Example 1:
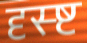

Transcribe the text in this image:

दृस्ष्ट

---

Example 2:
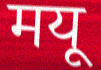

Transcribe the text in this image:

मयू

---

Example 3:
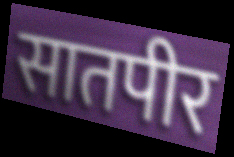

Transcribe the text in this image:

सातपीर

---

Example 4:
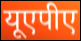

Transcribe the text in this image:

यूएपीए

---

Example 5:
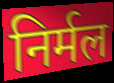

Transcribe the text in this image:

निर्मल